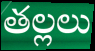
తల్లలు